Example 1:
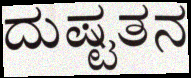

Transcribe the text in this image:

ದುಷ್ಟತನ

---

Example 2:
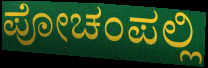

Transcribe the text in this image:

ಪೋಚಂಪಲ್ಲಿ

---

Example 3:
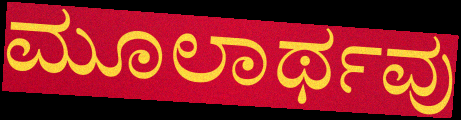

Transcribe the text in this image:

ಮೂಲಾರ್ಥವು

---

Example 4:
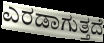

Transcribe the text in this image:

ಎರಡಾಗುತ್ತದೆ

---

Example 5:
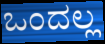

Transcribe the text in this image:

ಒಂದಲ್ಲ